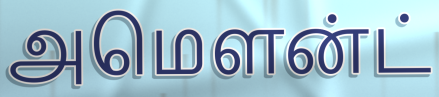
அமௌன்ட்